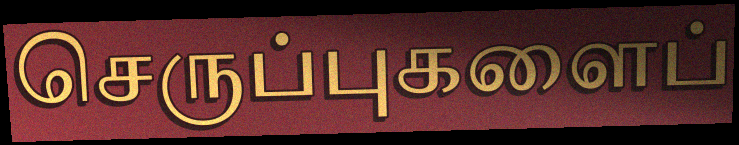
செருப்புகளைப்